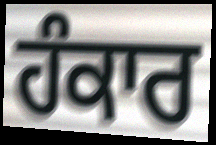
ਹੰਕਾਰ